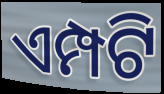
ଏମ୍ପଟି